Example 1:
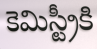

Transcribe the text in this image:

కెమిస్ట్రీకి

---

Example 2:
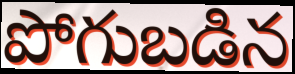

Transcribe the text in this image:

పోగుబడిన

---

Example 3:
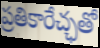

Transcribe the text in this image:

ప్రతికారేచ్ఛతో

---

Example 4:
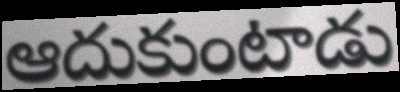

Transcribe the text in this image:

ఆదుకుంటాడు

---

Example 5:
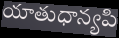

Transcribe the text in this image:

యాతుధాన్యపి